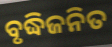
ବୃଦ୍ଧିଜନିତ